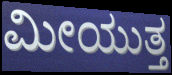
ಮೀಯುತ್ತ